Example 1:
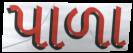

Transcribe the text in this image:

પાળા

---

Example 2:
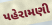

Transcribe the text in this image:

પહેરામણી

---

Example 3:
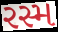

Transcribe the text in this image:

રસ્મ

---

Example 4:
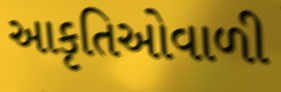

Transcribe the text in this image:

આકૃતિઓવાળી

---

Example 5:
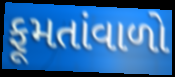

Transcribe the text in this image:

ફૂમતાંવાળો